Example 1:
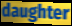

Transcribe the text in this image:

daughter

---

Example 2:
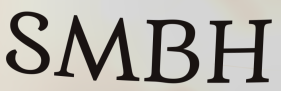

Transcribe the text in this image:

SMBH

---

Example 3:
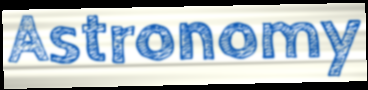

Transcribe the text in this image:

Astronomy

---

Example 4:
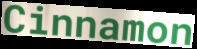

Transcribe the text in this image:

Cinnamon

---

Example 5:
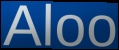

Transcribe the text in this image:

Aloo